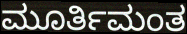
ಮೂರ್ತಿಮಂತ